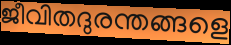
ജീവിതദുരന്തങ്ങളെ